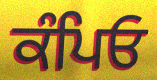
ਕੰਪਿਓ